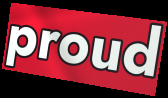
proud